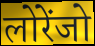
लोरेंजो